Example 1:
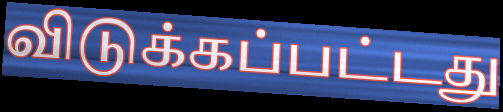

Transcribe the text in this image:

விடுக்கப்பட்டது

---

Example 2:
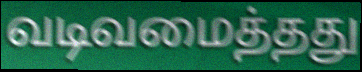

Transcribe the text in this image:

வடிவமைத்தது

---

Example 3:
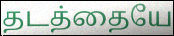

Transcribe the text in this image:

தடத்தையே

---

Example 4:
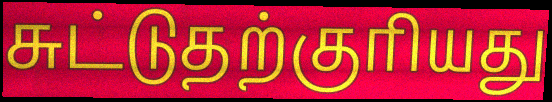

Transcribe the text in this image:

சுட்டுதற்குரியது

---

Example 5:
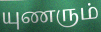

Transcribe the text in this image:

யுணரும்